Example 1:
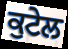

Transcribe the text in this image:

ਕੁਟੇਲ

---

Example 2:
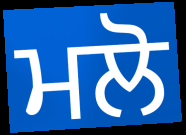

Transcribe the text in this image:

ਮਲੋ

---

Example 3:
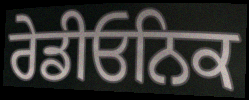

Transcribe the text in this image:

ਰੇਡੀਓਨਿਕ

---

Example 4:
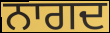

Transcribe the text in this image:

ਨਾਗਦ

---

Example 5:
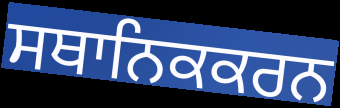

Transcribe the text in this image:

ਸਥਾਨਿਕਕਰਨ